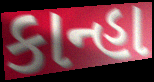
કાન્હા